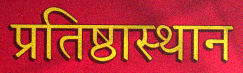
प्रतिष्ठास्थान